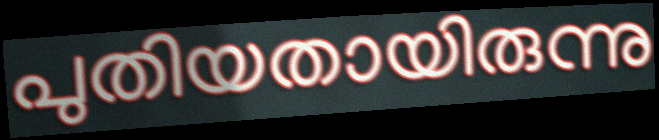
പുതിയതായിരുന്നു